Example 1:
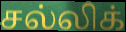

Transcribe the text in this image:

சல்லிக்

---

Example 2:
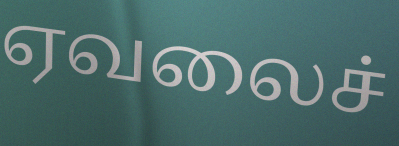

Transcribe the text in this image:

ஏவலைச்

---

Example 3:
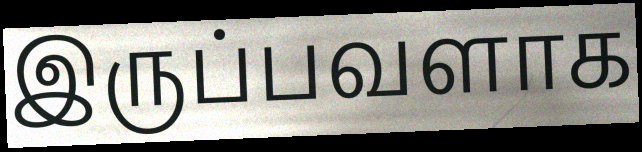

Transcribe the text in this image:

இருப்பவளாக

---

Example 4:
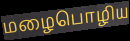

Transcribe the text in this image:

மழைபொழிய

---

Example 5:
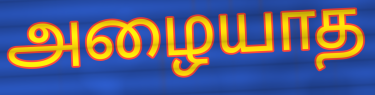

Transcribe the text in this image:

அழையாத